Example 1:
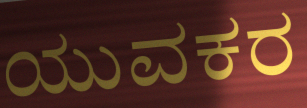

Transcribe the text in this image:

ಯುವಕರ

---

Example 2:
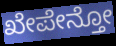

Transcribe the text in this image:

ಖೇಪೇನ್ತೋ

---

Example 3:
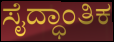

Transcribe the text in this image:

ಸೈದ್ಧಾಂತಿಕ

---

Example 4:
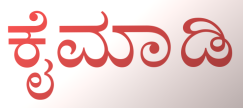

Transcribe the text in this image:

ಕೈಮಾಡಿ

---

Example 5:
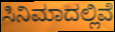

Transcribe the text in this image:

ಸಿನಿಮಾದಲ್ಲಿವೆ